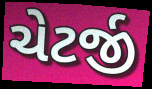
ચેટર્જી